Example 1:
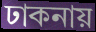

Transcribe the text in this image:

ঢাকনায়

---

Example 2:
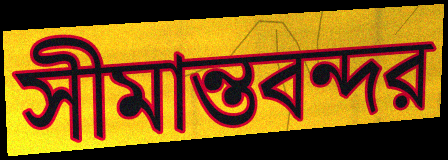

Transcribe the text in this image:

সীমান্তবন্দর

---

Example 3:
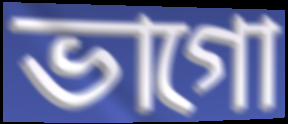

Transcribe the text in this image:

ভাগো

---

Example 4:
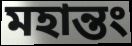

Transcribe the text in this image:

মহান্তং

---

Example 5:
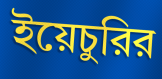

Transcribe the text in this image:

ইয়েচুরির